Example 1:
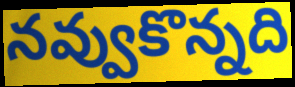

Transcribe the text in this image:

నవ్వుకొన్నది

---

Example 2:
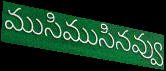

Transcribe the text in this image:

ముసిముసినవ్వు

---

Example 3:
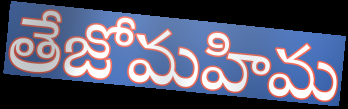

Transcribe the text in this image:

తేజోమహిమ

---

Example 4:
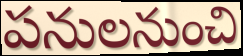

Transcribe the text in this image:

పనులనుంచి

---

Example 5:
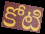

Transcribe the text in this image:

కోటి